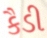
કૈડી